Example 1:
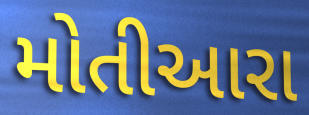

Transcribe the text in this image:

મોતીઆરા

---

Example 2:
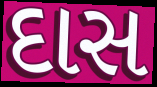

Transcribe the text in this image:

દાસ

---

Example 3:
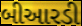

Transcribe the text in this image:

બીઆરડી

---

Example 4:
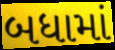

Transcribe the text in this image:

બધામાં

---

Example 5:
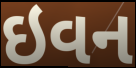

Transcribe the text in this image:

ઇવન